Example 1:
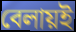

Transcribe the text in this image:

বেলায়ই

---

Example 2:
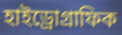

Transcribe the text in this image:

হাইড্রোগ্রাফিক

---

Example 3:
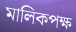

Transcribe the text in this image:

মালিকপক্ষ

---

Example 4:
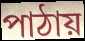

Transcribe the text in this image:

পাঠায়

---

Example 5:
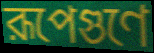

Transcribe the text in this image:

রূপেগুণে